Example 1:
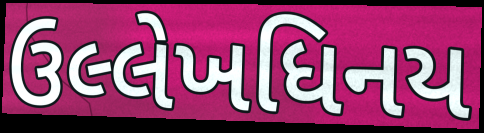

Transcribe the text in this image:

ઉલ્લેખધિનય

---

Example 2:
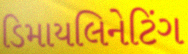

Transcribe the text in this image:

ડિમાયલિનેટિંગ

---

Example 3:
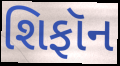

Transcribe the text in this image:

શિફૉન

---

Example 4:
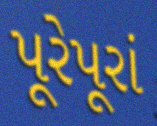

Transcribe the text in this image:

પૂરેપૂરાં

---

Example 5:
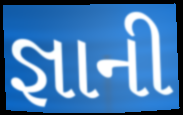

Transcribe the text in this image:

જ્ઞાની